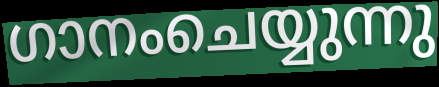
ഗാനംചെയ്യുന്നു